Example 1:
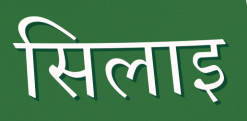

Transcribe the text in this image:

सिलाइ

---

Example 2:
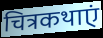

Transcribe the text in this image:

चित्रकथाएं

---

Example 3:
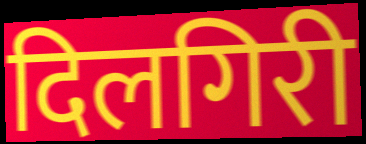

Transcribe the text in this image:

दिलगिरी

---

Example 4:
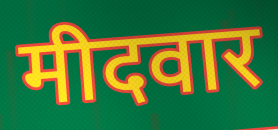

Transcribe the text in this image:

मीदवार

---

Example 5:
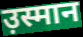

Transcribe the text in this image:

उ़स्मान